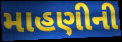
માહણીની